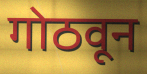
गोठवून